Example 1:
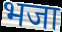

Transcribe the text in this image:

भजा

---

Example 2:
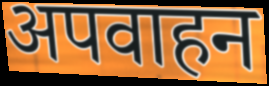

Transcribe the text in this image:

अपवाहन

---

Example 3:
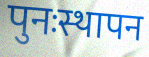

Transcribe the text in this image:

पुनःस्थापन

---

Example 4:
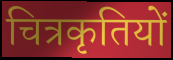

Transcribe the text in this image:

चित्रकृतियों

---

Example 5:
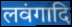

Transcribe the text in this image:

लवंगादि